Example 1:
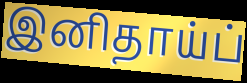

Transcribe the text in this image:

இனிதாய்ப்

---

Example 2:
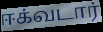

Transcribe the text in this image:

ஈக்வடார்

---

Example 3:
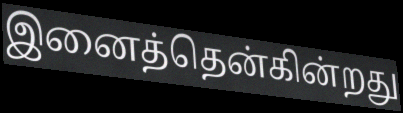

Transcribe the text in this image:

இனைத்தென்கின்றது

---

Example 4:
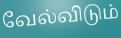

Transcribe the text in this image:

வேல்விடும்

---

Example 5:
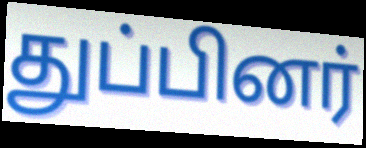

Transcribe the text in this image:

துப்பினர்